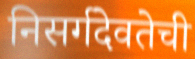
निसर्गदेवतेची